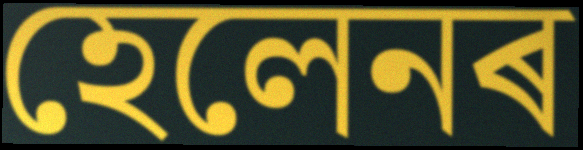
হেলেনৰ